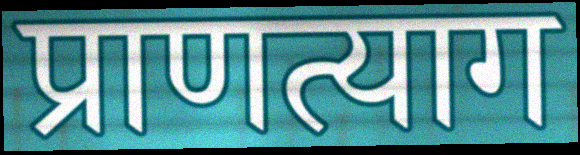
प्राणत्याग